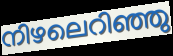
നിഴലെറിഞ്ഞു